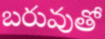
బరువుతో